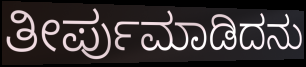
ತೀರ್ಪುಮಾಡಿದನು